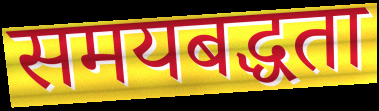
समयबद्धता